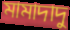
মামাদাদু